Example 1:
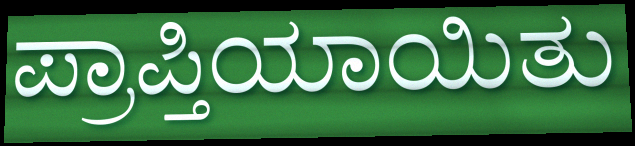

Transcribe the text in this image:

ಪ್ರಾಪ್ತಿಯಾಯಿತು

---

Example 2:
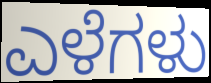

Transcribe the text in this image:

ಎಳೆಗಳು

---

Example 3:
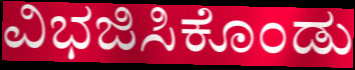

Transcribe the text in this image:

ವಿಭಜಿಸಿಕೊಂಡು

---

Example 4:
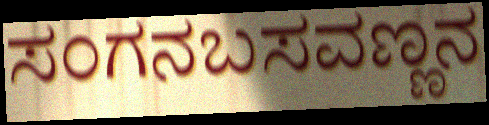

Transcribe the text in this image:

ಸಂಗನಬಸವಣ್ಣನ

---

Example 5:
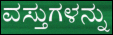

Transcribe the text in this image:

ವಸ್ತುಗಳನ್ನು